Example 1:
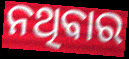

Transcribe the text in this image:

ନଥିବାର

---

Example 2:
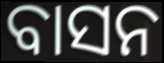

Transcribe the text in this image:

ବାସନ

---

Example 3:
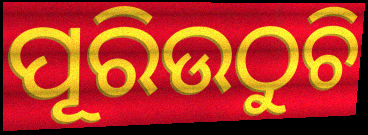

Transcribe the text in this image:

ପୂରିଉଠୁଚି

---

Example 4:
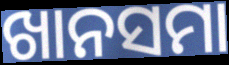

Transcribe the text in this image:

ଖାନସମା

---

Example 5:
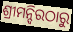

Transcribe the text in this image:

ଶ୍ରୀମନ୍ଦିରଠାରୁ